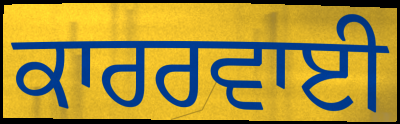
ਕਾਰਰਵਾਈ